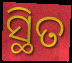
ସ୍ଥିତ